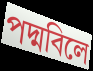
পদ্মবিলে